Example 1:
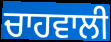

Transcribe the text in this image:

ਚਾਹਵਾਲੀ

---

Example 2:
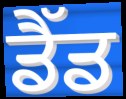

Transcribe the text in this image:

ਡੈੱਡ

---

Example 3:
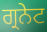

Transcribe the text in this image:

ਗ੍ਰਨੇਟ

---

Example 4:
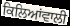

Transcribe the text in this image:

ਕਿਲਿਆਂਵਾਲੀ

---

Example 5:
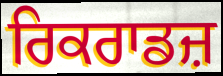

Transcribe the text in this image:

ਰਿਕਰਾਡਜ਼